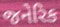
જનેરિક